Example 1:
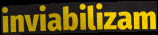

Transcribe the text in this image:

inviabilizam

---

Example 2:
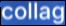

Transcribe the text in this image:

collag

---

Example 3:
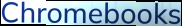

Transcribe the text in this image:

Chromebooks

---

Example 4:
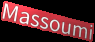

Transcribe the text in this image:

Massoumi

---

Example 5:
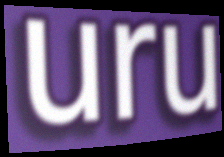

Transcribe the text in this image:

uru